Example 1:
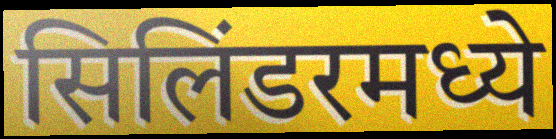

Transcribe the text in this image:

सिलिंडरमध्ये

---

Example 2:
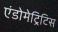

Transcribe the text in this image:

एंडोमेट्रिटिस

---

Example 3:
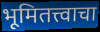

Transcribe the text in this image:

भूमितत्त्वाचा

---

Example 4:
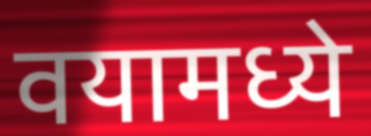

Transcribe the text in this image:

वयामध्ये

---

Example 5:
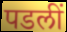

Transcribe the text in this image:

पडलीं